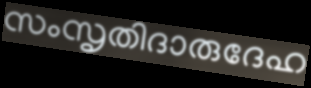
സംസൃതിദാരുദേഹ